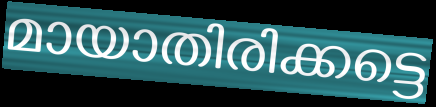
മായാതിരിക്കട്ടെ